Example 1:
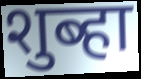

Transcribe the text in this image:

शुब्हा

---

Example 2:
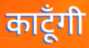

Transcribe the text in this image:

काटूँगी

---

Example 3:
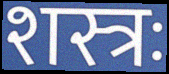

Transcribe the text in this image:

शस्त्रः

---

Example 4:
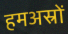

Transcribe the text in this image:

हमअस्रों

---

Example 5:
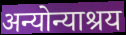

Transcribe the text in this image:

अन्योन्याश्रय